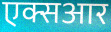
एक्सआर